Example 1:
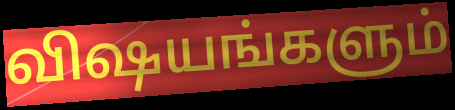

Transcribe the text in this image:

விஷயங்களும்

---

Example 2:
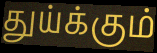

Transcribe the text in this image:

துய்க்கும்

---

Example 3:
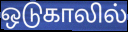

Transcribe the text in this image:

ஒடுகாலில்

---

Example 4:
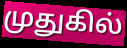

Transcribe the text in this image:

முதுகில்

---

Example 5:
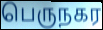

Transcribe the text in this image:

பெருநகர